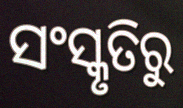
ସଂସ୍କୃତିରୁ